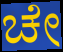
ಚೇ